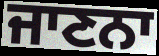
ਜਾਣਨਾ